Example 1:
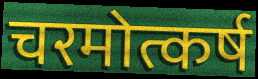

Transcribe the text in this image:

चरमोत्कर्ष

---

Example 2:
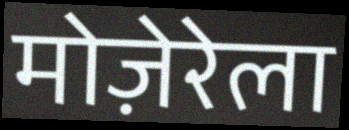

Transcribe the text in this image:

मोज़ेरेला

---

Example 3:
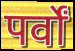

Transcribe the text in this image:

पर्वों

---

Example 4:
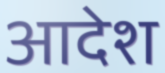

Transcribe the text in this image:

आदेश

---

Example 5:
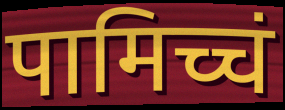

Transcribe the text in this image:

पामिच्चं